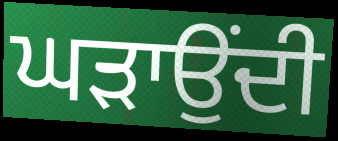
ਘੜਾਉਂਦੀ